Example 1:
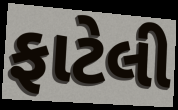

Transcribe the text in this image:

ફાટેલી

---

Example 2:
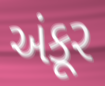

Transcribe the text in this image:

અંકૂર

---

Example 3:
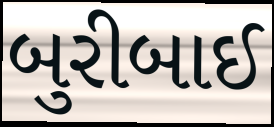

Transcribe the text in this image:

બુરીબાઈ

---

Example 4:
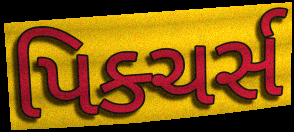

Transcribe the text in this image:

પિક્ચર્સ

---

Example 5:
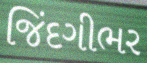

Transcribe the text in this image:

જિંદગીભર